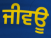
ਜੀਵਊ